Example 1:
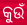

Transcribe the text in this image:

କୁଉଁ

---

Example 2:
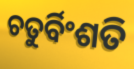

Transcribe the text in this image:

ଚତୁର୍ବିଂଶତି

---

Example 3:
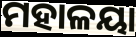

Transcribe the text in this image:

ମହାଳୟା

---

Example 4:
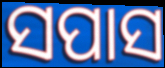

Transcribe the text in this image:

ସପାସ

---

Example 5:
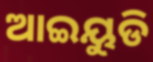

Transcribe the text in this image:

ଆଇୟୁଡି